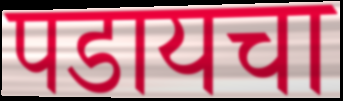
पडायचा